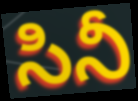
సినీ